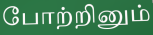
போற்றினும்